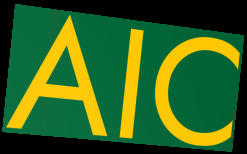
AIC